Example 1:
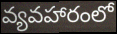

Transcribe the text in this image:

వ్యవహారంలో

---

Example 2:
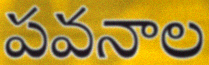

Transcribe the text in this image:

పవనాల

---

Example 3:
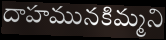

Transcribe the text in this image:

దాహమునకిమ్మని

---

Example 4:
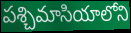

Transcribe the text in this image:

పశ్చిమాసియాలోని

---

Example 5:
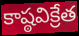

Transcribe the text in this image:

కాష్ఠవిక్రేత